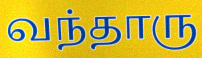
வந்தாரு